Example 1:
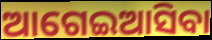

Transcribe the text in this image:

ଆଗେଇଆସିବା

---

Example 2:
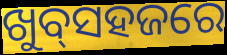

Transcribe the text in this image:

ଖୁବ୍‌ସହଜରେ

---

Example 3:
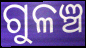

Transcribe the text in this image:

ଗୁଳଞ୍ଚ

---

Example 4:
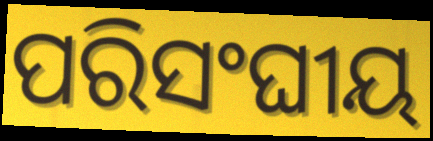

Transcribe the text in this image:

ପରିସଂଘୀୟ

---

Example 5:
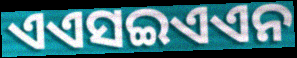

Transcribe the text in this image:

ଏଏସଇଏଏନ